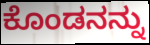
ಕೊಂಡನನ್ನು